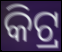
କିଟ୍ର